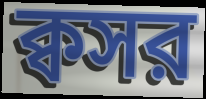
ক্বসর